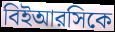
বিইআরসিকে